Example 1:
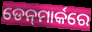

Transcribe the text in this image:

ଡେନ୍‍ମାର୍କରେ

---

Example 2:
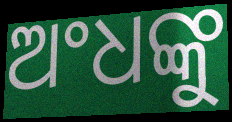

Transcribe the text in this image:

ଅଂଧଙ୍କୁ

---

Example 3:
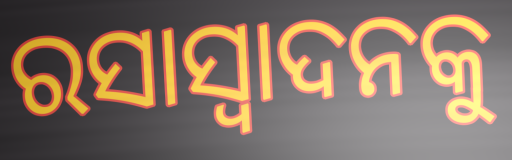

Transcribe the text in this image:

ରସାସ୍ୱାଦନକୁ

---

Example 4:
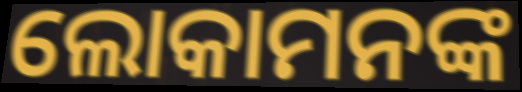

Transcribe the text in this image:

ଲୋକାମନଙ୍କ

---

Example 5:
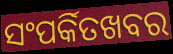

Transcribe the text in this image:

ସଂପର୍କିତଖବର